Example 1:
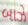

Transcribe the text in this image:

બાઝે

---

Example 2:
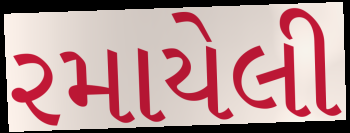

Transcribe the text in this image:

રમાયેલી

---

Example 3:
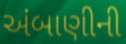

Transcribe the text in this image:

અંબાણીની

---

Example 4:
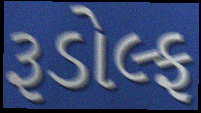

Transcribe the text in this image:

રૂડોલ્ફ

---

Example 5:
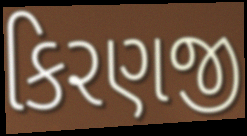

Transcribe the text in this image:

કિરણજી